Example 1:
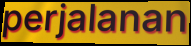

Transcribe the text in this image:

perjalanan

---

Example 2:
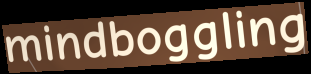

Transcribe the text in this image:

mindboggling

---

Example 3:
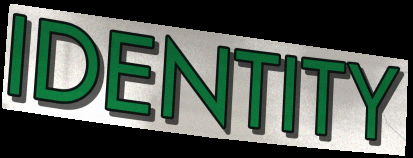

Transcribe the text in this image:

IDENTITY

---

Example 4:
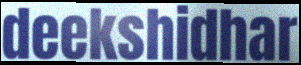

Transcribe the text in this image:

deekshidhar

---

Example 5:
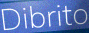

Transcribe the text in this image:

Dibrito